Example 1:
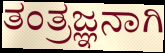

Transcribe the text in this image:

ತಂತ್ರಜ್ಞನಾಗಿ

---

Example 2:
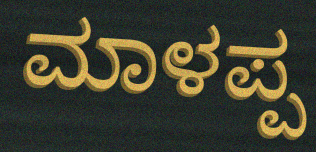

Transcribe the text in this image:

ಮಾಳಪ್ಪ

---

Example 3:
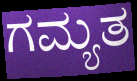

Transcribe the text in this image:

ಗಮ್ಯತ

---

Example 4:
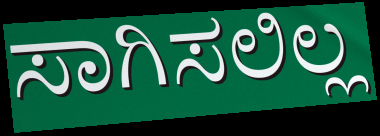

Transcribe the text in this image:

ಸಾಗಿಸಲಿಲ್ಲ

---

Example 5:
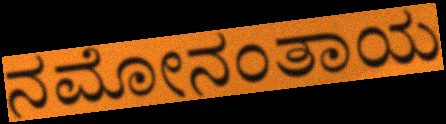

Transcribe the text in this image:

ನಮೋನಂತಾಯ